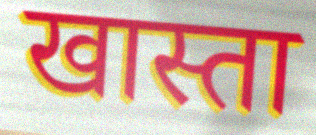
खास्ता